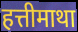
हत्तीमाथा